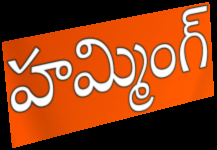
హమ్మింగ్